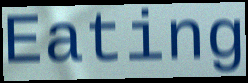
Eating